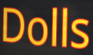
Dolls